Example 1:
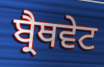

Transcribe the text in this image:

ਬ੍ਰੈਥਵੇਟ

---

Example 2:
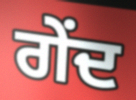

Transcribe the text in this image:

ਗੇਂਦ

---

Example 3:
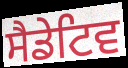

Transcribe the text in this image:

ਸੈਡੇਟਿਵ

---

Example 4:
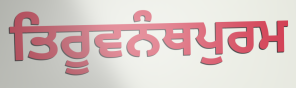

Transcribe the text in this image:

ਤਿਰੂਵਨੰਥਪੁਰਮ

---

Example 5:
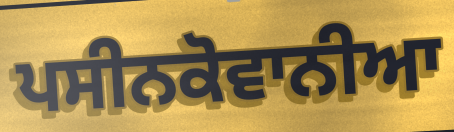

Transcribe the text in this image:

ਪਸੀਨਕੋਵਾਨੀਆ